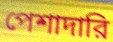
পেশাদারি